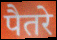
पैतरे